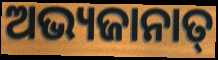
ଅଭ୍ୟଜାନାତ୍